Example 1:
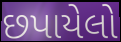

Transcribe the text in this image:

છપાયેલો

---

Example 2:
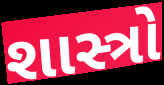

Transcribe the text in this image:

શાસ્ત્રો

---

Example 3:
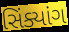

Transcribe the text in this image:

સિંક્યાંગ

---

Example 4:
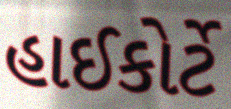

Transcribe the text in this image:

હાઈકોર્ટે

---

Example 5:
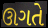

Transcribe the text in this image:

ઊગતે